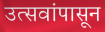
उत्सवांपासून